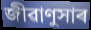
জীৱাণুসাৰ